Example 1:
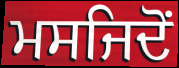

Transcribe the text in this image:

ਮਸਜਿਦੋਂ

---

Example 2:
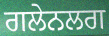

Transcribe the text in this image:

ਗਲੇਨਲਗ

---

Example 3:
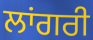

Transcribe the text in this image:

ਲਾਂਗਰੀ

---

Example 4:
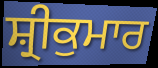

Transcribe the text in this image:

ਸ਼੍ਰੀਕੁਮਾਰ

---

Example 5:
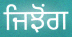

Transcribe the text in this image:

ਜਿਝੋਂਗ